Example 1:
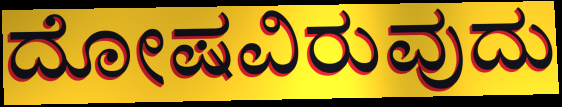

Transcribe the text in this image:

ದೋಷವಿರುವುದು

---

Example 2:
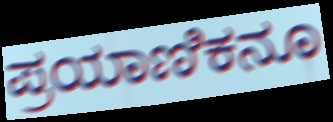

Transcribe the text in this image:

ಪ್ರಯಾಣಿಕನೂ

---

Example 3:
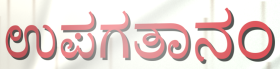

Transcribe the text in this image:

ಉಪಗತಾನಂ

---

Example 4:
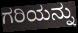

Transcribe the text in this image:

ಗರಿಯನ್ನು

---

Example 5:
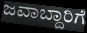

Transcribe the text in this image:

ಜವಾಬ್ದಾರಿಗೆ